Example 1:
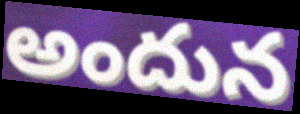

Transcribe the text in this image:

అందున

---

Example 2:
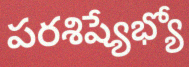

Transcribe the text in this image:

పరశిష్యేభ్యో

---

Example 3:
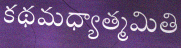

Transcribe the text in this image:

కథమధ్యాత్మమితి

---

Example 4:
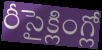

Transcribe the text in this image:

రీసైక్లింగ్లో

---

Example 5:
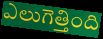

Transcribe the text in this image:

ఎలుగెత్తింది